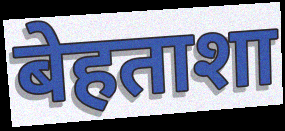
बेहताशा